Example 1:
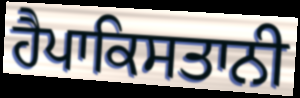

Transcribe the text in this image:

ਹੈਪਾਕਿਸਤਾਨੀ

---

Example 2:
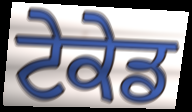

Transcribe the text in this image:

ਟੇਕੇਡ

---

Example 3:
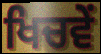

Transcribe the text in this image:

ਖਿਚਵੇਂ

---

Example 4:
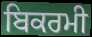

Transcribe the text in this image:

ਬਿਕਰਮੀ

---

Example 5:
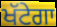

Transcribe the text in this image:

ਖੱਟੇਗਾ